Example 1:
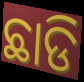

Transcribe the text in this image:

ଛାଡି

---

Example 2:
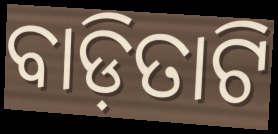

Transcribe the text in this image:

ବାଡ଼ିତାଟି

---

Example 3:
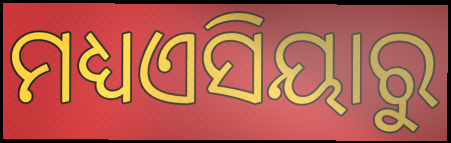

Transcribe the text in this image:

ମଧ୍ୟଏସିୟାରୁ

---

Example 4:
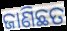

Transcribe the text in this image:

ଜାଣିଛତ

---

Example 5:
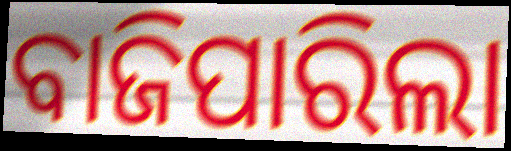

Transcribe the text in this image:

ବାଜିପାରିଲା